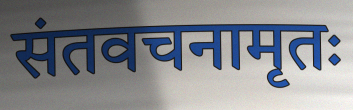
संतवचनामृतः